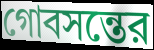
গোবসন্তের